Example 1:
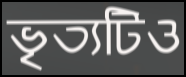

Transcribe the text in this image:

ভৃত্যটিও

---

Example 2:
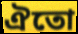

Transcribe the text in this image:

ঐতো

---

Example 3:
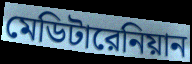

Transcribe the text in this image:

মেডিটারেনিয়ান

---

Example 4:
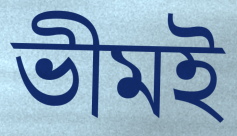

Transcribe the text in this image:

ভীমই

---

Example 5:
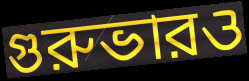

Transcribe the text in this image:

গুরুভারও